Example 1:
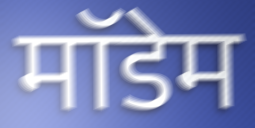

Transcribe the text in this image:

मॉडेम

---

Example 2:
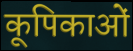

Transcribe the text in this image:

कूपिकाओं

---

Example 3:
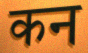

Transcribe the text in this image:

कन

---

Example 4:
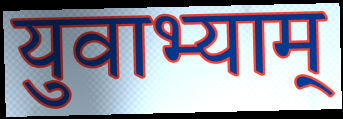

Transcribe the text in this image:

युवाभ्याम्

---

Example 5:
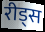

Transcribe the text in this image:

रीड्स